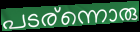
പടര്ന്നൊരു